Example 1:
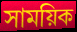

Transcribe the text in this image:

সাময়িক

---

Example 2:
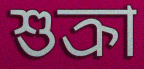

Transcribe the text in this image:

শুক্ৰা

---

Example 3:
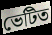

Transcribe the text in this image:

ভেটিত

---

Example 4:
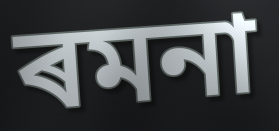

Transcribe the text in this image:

ৰমনা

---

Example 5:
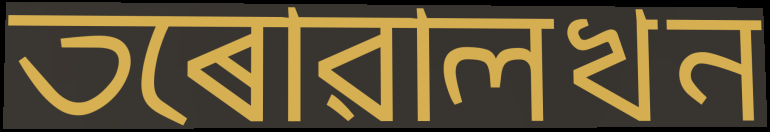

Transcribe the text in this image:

তৰোৱালখন